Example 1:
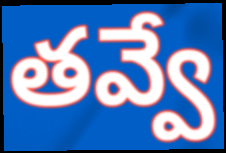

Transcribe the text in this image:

తవ్వే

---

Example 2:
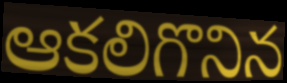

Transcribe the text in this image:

ఆకలిగొనిన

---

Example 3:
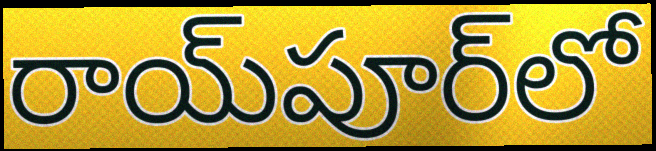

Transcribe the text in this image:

రాయ్‌పూర్‌లో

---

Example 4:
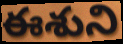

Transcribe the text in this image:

ఈశుని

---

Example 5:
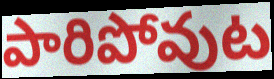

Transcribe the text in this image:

పారిపోవుట